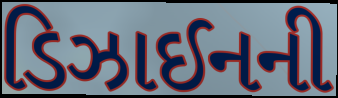
ડિઝાઈનની